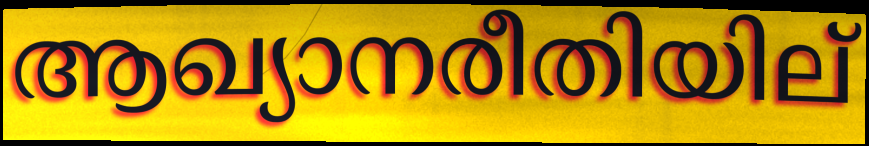
ആഖ്യാനരീതിയില്